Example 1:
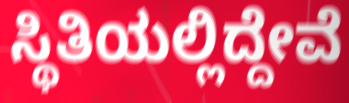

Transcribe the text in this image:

ಸ್ಥಿತಿಯಲ್ಲಿದ್ದೇವೆ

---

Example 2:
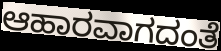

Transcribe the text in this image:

ಆಹಾರವಾಗದಂತೆ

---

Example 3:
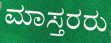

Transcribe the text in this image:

ಮಾಸ್ತರರು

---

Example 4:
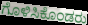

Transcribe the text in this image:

ಗೊಳಿಸಿಕೊಂಡರು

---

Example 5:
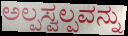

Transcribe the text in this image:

ಅಲ್ಪಸ್ವಲ್ಪವನ್ನು